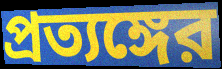
প্রত্যঙ্গের